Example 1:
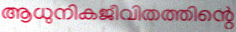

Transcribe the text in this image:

ആധുനികജീവിതത്തിന്റെ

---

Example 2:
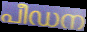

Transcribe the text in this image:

പീഡന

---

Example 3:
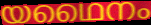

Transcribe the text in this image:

യഥൈനം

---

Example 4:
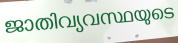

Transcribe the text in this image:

ജാതിവ്യവസ്ഥയുടെ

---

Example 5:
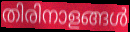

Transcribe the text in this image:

തിരിനാളങ്ങൾ